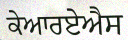
ਕੇਆਰਏਐਸ